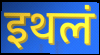
इथलं